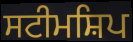
ਸਟੀਮਸ਼ਿਪ